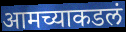
आमच्याकडलं